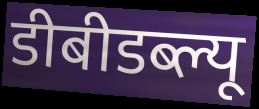
डीबीडब्ल्यू